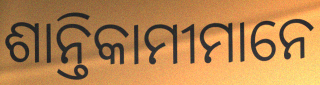
ଶାନ୍ତିକାମୀମାନେ